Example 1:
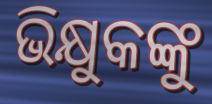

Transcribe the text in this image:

ଭିକ୍ଷୁକଙ୍କୁ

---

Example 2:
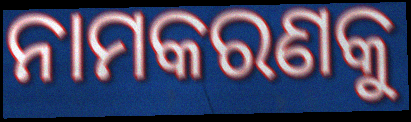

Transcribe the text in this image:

ନାମକରଣକୁ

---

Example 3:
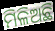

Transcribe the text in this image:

ମିଳିଅଛି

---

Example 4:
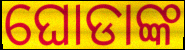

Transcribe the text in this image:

ଘୋଡାଙ୍କ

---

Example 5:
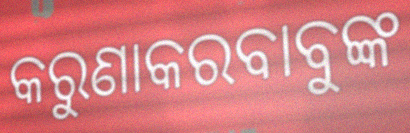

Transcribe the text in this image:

କରୁଣାକରବାବୁଙ୍କ